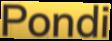
Pondi